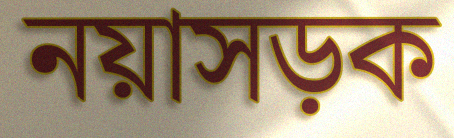
নয়াসড়ক